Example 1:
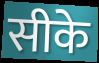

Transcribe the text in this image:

सीके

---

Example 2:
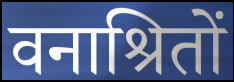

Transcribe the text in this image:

वनाश्रितों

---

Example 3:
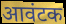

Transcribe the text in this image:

आवंटक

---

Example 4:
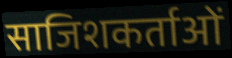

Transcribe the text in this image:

साजिशकर्ताओं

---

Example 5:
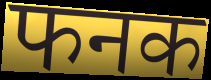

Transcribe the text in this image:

फनक